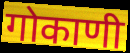
गोकाणी